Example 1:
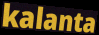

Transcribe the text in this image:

kalanta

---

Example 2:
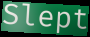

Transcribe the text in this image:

Slept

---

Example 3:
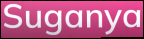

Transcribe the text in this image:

Suganya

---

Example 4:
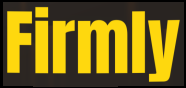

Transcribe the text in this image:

Firmly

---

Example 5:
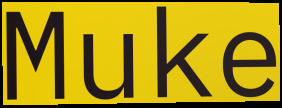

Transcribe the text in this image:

Muke